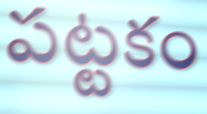
పట్టకం